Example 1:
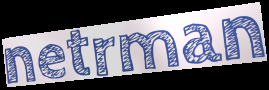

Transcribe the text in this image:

netrman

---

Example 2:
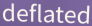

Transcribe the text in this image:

deflated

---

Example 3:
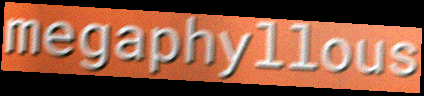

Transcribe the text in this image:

megaphyllous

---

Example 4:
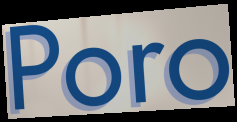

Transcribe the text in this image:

Poro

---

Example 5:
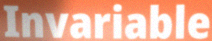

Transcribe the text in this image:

Invariable